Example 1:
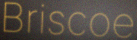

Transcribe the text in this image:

Briscoe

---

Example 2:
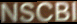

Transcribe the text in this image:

NSCBI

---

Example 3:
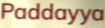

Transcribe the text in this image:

Paddayya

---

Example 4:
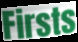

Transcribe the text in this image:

Firsts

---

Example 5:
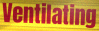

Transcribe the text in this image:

Ventilating